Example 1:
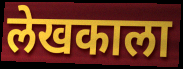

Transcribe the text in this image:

लेखकाला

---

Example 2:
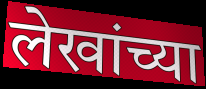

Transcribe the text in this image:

लेखांच्या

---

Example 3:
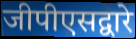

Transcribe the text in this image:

जीपीएसद्वारे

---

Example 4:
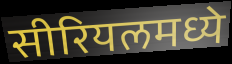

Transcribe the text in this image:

सीरियलमध्ये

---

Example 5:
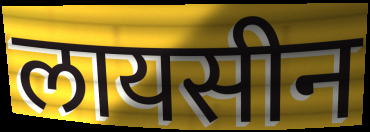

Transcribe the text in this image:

लायसीन